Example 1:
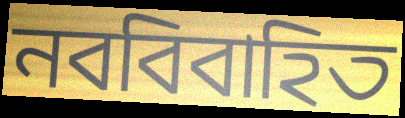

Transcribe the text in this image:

নববিবাহিত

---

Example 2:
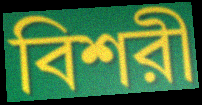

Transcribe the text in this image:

বিশরী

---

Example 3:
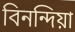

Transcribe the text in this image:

বিনন্দিয়া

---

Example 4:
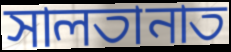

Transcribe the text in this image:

সালতানাত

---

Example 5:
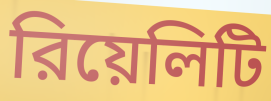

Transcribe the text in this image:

রিয়েলিটি